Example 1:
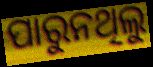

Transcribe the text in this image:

ପାରୁନଥିଲୁ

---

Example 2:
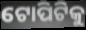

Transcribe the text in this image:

ଟୋପିଟିକୁ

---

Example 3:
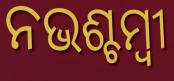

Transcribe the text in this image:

ନଭଶ୍ଚମ୍ବୀ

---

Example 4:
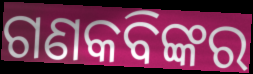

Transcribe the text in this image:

ଗଣକବିଙ୍କର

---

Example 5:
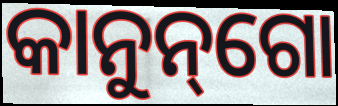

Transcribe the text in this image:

କାନୁନ୍‌ଗୋ